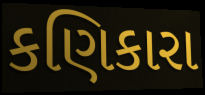
કણિકારા